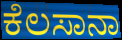
ಕೆಲಸಾನಾ